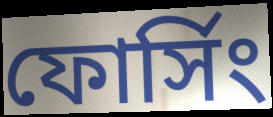
ফোর্সিং